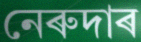
নেৰুদাৰ